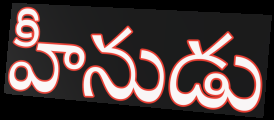
హీనుడు